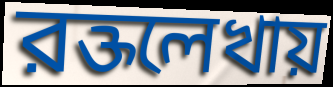
রক্তলেখায়